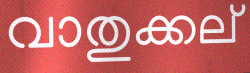
വാതുക്കല്